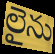
లైను